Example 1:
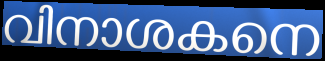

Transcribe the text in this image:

വിനാശകനെ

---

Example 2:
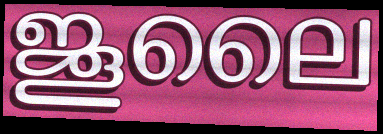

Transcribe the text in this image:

ജൂലൈ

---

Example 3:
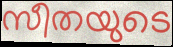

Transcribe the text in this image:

സീതയുടെ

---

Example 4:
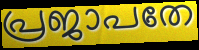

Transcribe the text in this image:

പ്രജാപതേ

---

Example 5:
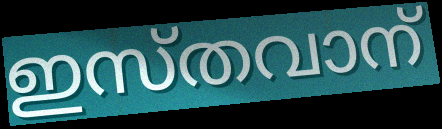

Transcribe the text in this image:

ഇസ്തവാന്